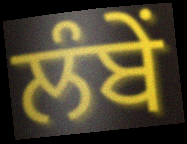
ਲੰਬੇਂ